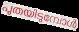
പുതയിടുമ്പോൾ